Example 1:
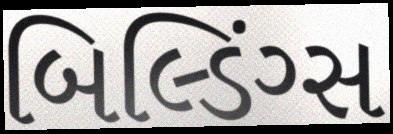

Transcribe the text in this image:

બિલ્ડિંગ્સ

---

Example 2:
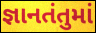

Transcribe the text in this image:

જ્ઞાનતંતુમાં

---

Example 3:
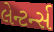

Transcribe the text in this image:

લેન્ટર્ન્સ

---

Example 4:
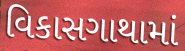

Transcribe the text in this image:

વિકાસગાથામાં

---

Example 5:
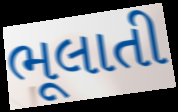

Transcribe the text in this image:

ભૂલાતી